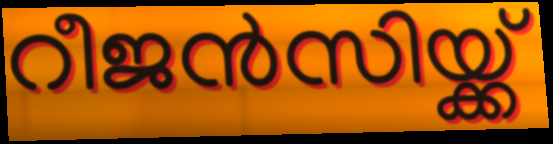
റീജൻസിയ്ക്ക്